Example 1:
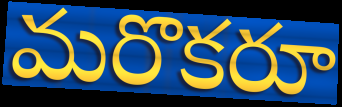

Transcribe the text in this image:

మరొకరూ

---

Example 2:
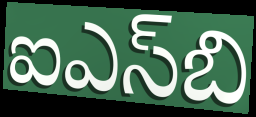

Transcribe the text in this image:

ఐఎస్‌బి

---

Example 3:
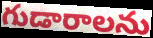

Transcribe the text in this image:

గుడారాలను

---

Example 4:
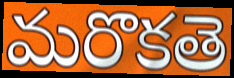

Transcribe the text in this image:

మరొకతె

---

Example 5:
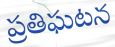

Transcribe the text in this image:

ప్రతిఘటన